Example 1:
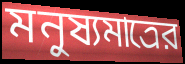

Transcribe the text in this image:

মনুষ্যমাত্রের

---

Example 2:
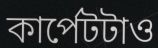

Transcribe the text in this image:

কার্পেটটাও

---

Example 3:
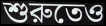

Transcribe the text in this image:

শুরুতেও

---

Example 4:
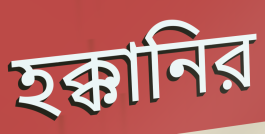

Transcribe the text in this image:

হক্কানির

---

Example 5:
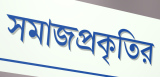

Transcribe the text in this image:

সমাজপ্রকৃতির